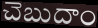
చెబుదాం